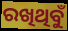
ରଖିଥିବୁଁ